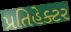
પ્રતિહેક્ટર